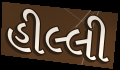
હીલ્લી